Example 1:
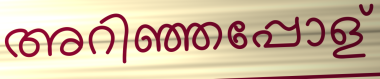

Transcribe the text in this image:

അറിഞ്ഞപ്പോള്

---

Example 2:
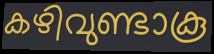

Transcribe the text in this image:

കഴിവുണ്ടാകൂ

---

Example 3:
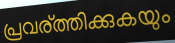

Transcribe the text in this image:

പ്രവര്ത്തിക്കുകയും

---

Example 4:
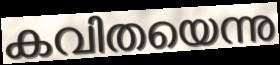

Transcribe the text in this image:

കവിതയെന്നു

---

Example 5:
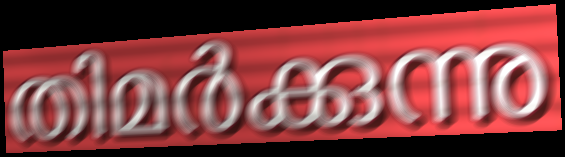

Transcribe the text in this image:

തിമർക്കുന്നു